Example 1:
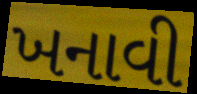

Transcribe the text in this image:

ખનાવી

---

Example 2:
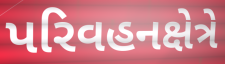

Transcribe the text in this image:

પરિવહનક્ષેત્રે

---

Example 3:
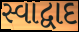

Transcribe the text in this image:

સ્વાદ્વાદ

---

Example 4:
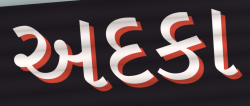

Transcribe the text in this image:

અદકા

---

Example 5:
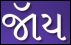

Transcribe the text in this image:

જૉય